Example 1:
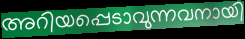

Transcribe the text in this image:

അറിയപ്പെടാവുന്നവനായി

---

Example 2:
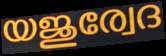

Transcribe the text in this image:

യജുര്വേദ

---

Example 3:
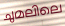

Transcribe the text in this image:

ചുമലിലെ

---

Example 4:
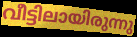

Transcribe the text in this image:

വീട്ടിലായിരുന്നു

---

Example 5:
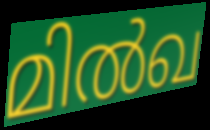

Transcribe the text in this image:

മിൽഖ